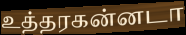
உத்தரகன்னடா